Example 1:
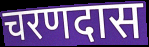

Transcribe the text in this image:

चरणदास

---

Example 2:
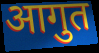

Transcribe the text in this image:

आगुत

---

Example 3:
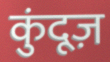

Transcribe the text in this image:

कुंदूज़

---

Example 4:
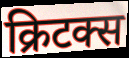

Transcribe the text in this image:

क्रिटक्स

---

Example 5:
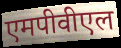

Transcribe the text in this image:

एमपीवीएल